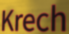
Krech